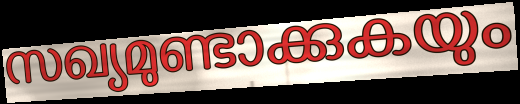
സഖ്യമുണ്ടാക്കുകയും